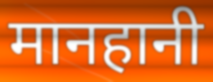
मानहानी